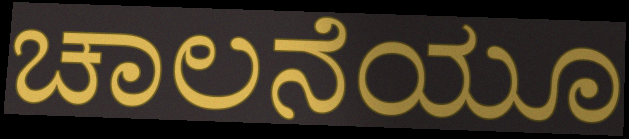
ಚಾಲನೆಯೂ